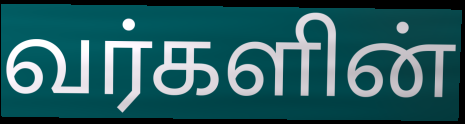
வர்களின்